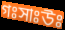
গঃসাঃউঃ